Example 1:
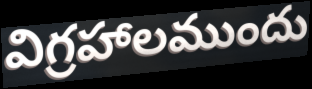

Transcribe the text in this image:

విగ్రహాలముందు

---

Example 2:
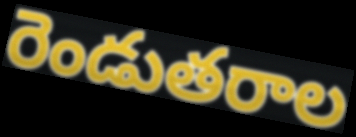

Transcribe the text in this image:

రెండుతరాల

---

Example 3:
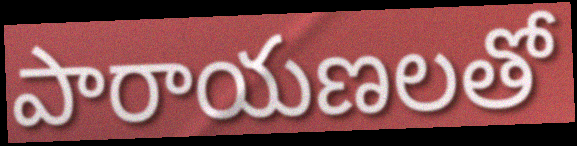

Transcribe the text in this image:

పారాయణలతో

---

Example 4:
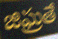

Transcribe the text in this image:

జిఘ్రతే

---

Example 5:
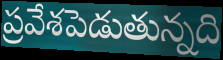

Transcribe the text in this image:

ప్రవేశపెడుతున్నది